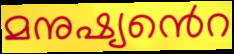
മനുഷ്യൻെറ